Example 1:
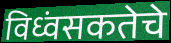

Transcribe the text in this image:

विध्वंसकतेचे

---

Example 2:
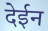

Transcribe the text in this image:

देईन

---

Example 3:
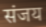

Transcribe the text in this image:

संजय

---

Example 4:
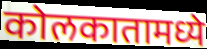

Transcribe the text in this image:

कोलकातामध्ये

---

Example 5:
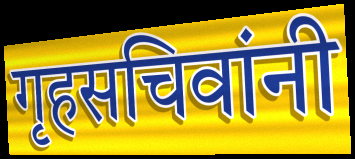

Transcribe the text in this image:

गृहसचिवांनी